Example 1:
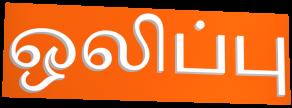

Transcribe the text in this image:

ஒலிப்பு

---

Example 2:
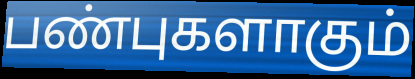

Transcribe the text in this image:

பண்புகளாகும்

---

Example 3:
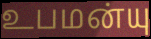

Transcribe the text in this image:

உபமன்யு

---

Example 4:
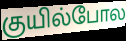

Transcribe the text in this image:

குயில்போல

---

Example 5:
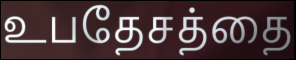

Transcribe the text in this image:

உபதேசத்தை